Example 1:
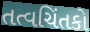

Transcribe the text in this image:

તત્વચિંતકો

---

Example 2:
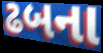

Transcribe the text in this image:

ઢબના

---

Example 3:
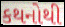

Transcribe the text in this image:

કથનોથી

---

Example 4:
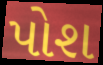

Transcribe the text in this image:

પોશ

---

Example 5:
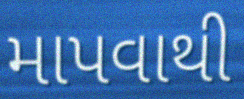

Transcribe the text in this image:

માપવાથી